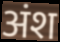
अंश